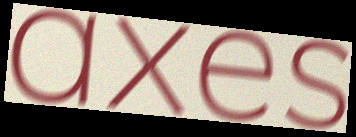
axes